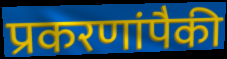
प्रकरणांपैकी